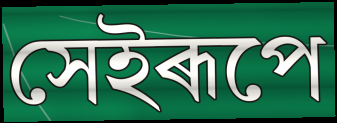
সেইৰূপে